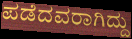
ಪಡೆದವರಾಗಿದ್ದು